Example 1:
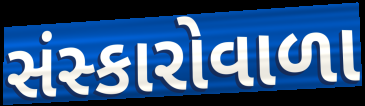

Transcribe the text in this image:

સંસ્કારોવાળા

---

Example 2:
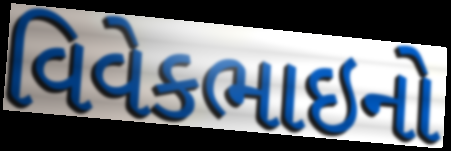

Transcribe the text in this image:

વિવેકભાઇનો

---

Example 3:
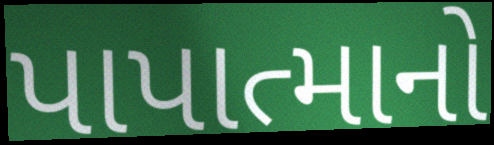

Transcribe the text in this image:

પાપાત્માનો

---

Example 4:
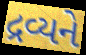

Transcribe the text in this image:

દ્રવ્યને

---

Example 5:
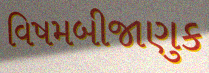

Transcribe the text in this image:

વિષમબીજાણુક